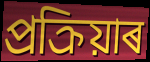
প্ৰক্ৰিয়াৰ